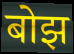
बोझ